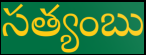
సత్యంబు